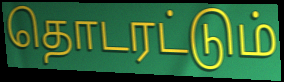
தொடரட்டும்